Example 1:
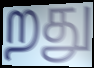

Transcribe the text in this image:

றது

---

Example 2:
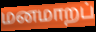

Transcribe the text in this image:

மனமாறப்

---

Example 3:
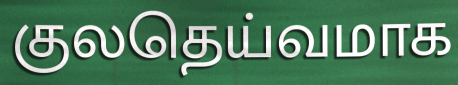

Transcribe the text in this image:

குலதெய்வமாக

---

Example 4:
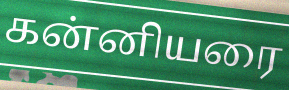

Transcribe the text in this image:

கன்னியரை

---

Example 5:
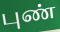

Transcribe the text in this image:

புண்